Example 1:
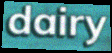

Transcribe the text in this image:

dairy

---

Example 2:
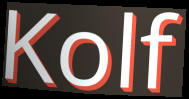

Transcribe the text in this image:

Kolf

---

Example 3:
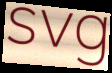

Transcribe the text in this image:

svg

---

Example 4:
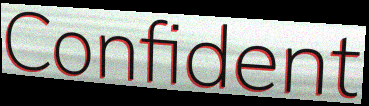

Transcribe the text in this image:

Confident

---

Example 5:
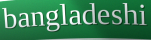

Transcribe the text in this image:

bangladeshi